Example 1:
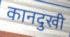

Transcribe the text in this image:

कानदुखी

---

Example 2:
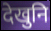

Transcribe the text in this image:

देखुनि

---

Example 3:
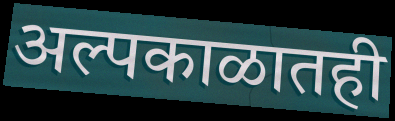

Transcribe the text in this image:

अल्पकाळातही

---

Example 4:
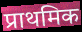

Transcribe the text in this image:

प्राथमिक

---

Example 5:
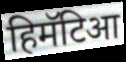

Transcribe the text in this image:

हिमॅटिआ